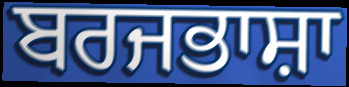
ਬਰਜਭਾਸ਼ਾ